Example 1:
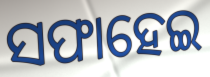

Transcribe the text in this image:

ସଫାହେଇ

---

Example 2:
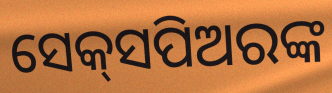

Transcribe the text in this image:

ସେକ୍‌ସପିଅରଙ୍କ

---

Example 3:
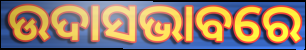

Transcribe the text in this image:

ଉଦାସଭାବରେ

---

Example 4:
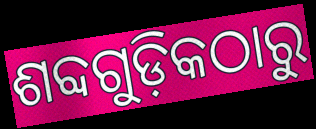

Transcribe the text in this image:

ଶବ୍ଦଗୁଡ଼ିକଠାରୁ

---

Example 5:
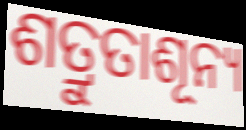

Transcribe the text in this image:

ଶତ୍ରୁତାଶୂନ୍ୟ